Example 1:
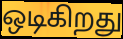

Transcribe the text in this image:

ஒடிகிறது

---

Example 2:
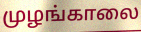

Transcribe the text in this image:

முழங்காலை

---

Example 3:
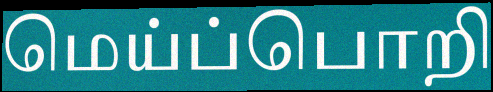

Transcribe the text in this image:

மெய்ப்பொறி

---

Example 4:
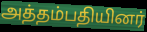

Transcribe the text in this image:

அத்தம்பதியினர்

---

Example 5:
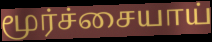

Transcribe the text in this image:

மூர்ச்சையாய்